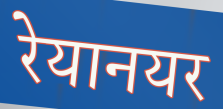
रेयानयर